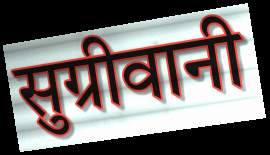
सुग्रीवानी